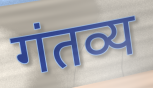
गंतव्य